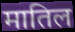
मातिल